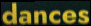
dances